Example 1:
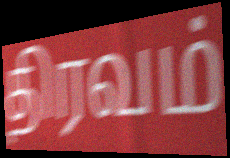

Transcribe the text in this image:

திரவம்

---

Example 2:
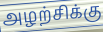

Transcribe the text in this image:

அழற்சிக்கு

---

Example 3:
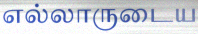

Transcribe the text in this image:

எல்லாருடைய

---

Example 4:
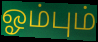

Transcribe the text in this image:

ஓம்பும்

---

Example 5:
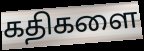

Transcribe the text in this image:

கதிகளை